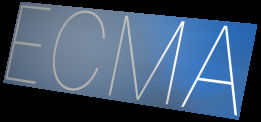
ECMA